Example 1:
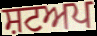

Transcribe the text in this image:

ਸ਼ਟਅਪ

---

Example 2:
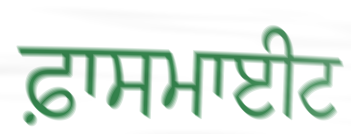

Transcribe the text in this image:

ਫ਼ਾਸਮਾਈਟ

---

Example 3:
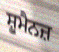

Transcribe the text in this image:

ਸ਼ੂਮੈਨਜ਼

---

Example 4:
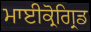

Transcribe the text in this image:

ਮਾਈਕ੍ਰੋਗ੍ਰਿਡ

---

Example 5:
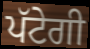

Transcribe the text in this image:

ਪੱਟੇਗੀ